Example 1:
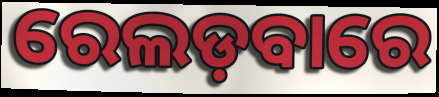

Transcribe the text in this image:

ରେଲଡ଼ବାରେ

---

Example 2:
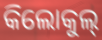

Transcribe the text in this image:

କିଲୋକୁଲ୍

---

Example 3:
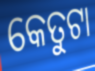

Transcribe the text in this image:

କେତୁଟା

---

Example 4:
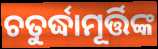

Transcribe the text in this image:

ଚତୁର୍ଦ୍ଧାମୂର୍ତ୍ତିଙ୍କ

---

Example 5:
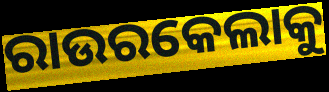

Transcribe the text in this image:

ରାଉରକେଲାକୁ